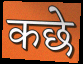
कछे